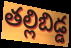
తల్లిబిడ్డ